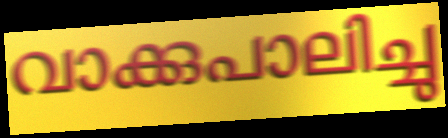
വാക്കുപാലിച്ചു